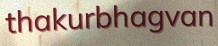
thakurbhagvan